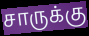
சாருக்கு